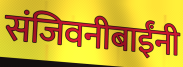
संजिवनीबाईंनी